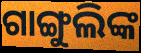
ଗାଙ୍ଗୁଲିଙ୍କ